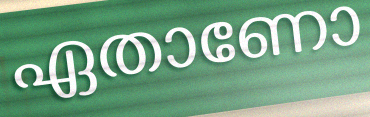
ഏതാണോ